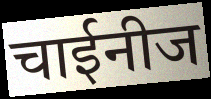
चाईनीज